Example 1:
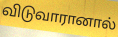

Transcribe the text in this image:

விடுவாரானால்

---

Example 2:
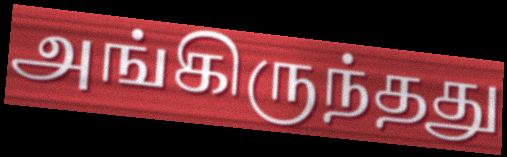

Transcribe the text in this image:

அங்கிருந்தது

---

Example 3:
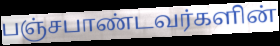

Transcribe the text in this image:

பஞ்சபாண்டவர்களின்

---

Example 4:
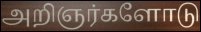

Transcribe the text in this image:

அறிஞர்களோடு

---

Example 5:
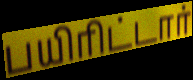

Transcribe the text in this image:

பயிரிட்டார்